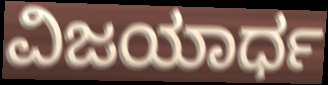
ವಿಜಯಾರ್ಧ